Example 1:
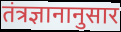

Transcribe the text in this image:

तंत्रज्ञानानुसार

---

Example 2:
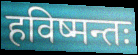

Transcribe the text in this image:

हविष्मन्तः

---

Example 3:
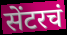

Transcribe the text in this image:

सेंटरचं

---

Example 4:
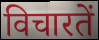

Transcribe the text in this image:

विचारतें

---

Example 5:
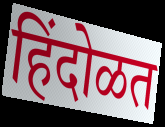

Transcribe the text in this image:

हिंदोळत